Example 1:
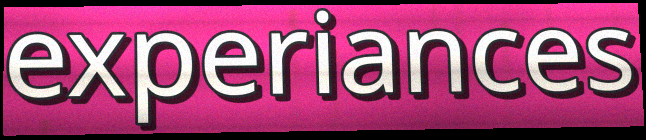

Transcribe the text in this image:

experiances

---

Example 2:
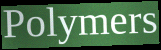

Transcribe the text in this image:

Polymers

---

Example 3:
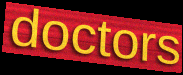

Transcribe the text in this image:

doctors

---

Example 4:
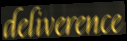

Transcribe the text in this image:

deliverence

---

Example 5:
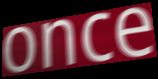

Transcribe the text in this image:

once